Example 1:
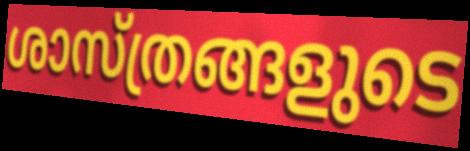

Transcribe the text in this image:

ശാസ്ത്രങ്ങളുടെ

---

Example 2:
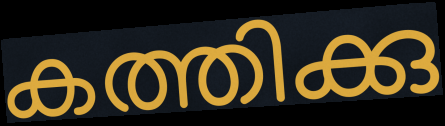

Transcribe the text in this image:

കത്തിക്കു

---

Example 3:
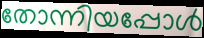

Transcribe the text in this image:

തോന്നിയപ്പോൾ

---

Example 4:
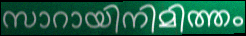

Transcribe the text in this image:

സാറായിനിമിത്തം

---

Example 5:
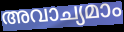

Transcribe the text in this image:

അവാച്യമാം